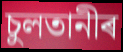
চুলতানীৰ